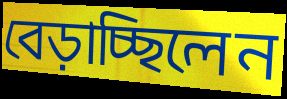
বেড়াচ্ছিলেন